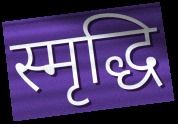
स्मृद्धि